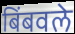
बिंबवले